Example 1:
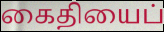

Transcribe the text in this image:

கைதியைப்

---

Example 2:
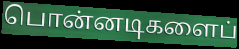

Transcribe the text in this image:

பொன்னடிகளைப்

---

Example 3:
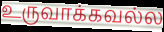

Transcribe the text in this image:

உருவாக்கவல்ல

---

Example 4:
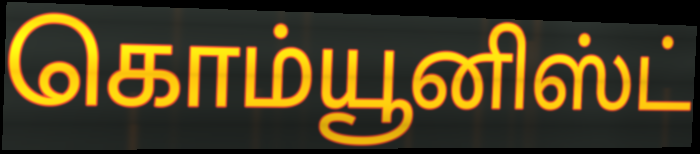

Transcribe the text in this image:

கொம்யூனிஸ்ட்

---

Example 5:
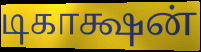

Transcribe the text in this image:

டிகாக்ஷன்